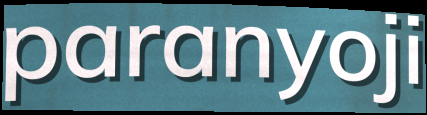
paranyoji